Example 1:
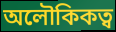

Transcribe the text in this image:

অলৌকিকত্ব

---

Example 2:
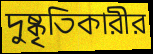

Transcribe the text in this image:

দুষ্কৃতিকারীর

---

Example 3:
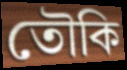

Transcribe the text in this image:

তৌকি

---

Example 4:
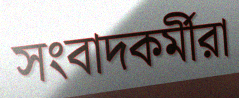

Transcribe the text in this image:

সংবাদকর্মীরা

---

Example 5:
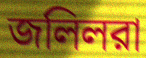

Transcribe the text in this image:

জলিলরা